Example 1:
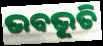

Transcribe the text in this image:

ଭବଭୂତି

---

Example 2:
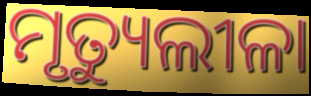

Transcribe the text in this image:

ମୃତ୍ୟୁଲୀଳା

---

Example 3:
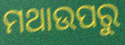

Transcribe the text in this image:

ମଥାଉପରୁ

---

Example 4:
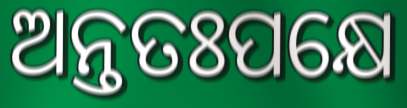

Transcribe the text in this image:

ଅନ୍ତତଃପକ୍ଷେ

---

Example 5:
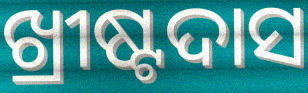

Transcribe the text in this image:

ଖ୍ରୀଷ୍ଟଦାସ